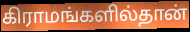
கிராமங்களில்தான்